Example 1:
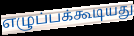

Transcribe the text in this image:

எழுப்பக்கூடியது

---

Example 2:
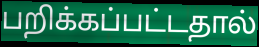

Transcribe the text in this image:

பறிக்கப்பட்டதால்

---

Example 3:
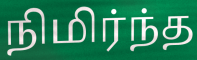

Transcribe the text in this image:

நிமிர்ந்த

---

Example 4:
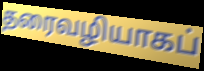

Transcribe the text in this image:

தரைவழியாகப்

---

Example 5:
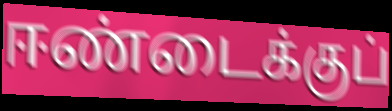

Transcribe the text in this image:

ஈண்டைக்குப்